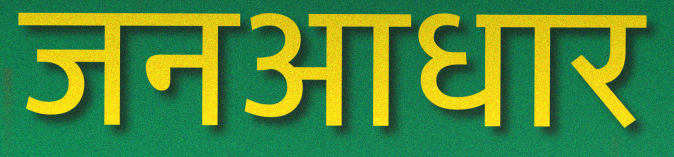
जनआधार